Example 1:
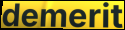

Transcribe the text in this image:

demerit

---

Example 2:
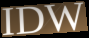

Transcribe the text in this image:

IDW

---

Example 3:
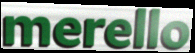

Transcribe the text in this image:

merello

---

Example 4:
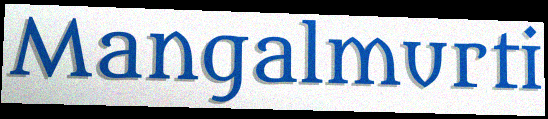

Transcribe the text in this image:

Mangalmurti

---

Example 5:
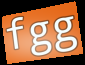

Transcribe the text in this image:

fgg